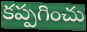
కప్పగించు